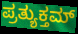
ಪ್ರತ್ಯುಕ್ತಮ್